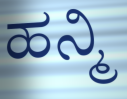
ಹನ್ಮಿ